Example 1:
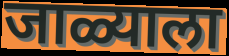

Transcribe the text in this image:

जाळ्याला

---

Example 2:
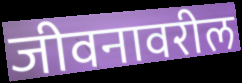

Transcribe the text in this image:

जीवनावरील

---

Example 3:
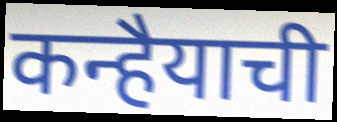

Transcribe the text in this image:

कन्हैयाची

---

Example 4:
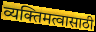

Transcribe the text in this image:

व्यक्तिमत्वासाठी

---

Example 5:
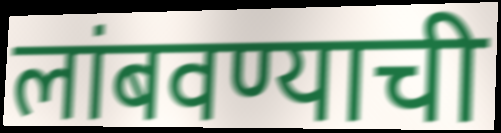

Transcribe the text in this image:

लांबवण्याची